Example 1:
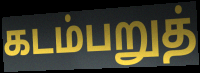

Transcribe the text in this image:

கடம்பறுத்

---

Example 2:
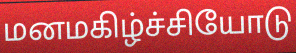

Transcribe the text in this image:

மனமகிழ்ச்சியோடு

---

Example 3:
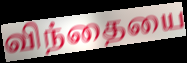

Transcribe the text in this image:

விந்தையை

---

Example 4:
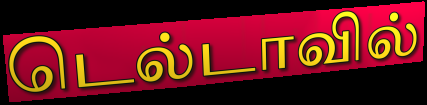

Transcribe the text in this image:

டெல்டாவில்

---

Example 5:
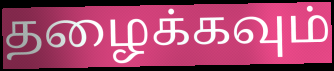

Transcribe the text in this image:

தழைக்கவும்